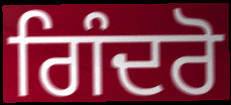
ਗਿੰਦਰੋ